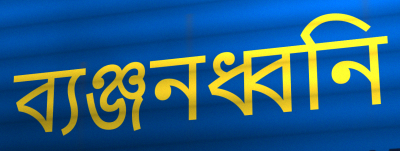
ব্যঞ্জনধ্বনি